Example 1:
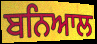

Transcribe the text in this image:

ਬਨਿਆਲ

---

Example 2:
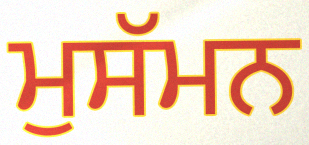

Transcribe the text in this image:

ਮੁਸੱਮਨ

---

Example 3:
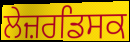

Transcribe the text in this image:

ਲੇਜ਼ਰਡਿਸਕ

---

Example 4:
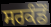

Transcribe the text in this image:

ਸਰਕੰਡੋਂ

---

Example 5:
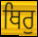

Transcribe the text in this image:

ਥਿਰੁ